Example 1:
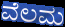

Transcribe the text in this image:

ವೆಲಮ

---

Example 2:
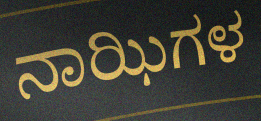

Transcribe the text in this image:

ನಾಝಿಗಳ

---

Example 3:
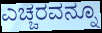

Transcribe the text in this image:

ಎಚ್ಚರವನ್ನೂ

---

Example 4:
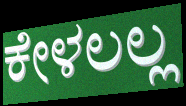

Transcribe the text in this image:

ಕೇಳಲಲ್ಲ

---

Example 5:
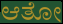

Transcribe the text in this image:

ಆತೋ